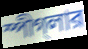
স্পীগ্‌লার